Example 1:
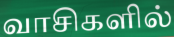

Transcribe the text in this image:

வாசிகளில்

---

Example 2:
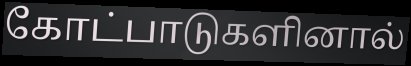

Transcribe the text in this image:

கோட்பாடுகளினால்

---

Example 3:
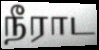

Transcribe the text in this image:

நீராட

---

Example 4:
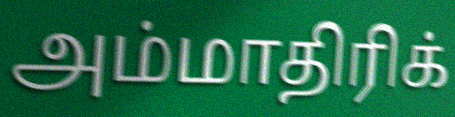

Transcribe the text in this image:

அம்மாதிரிக்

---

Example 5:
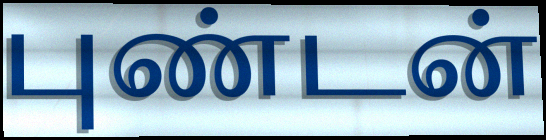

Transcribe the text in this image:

புண்டன்